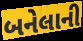
બનેલાની